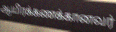
ஆயிரக்கணக்கானவர்